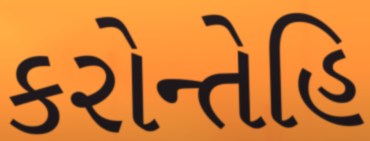
કરોન્તેહિ